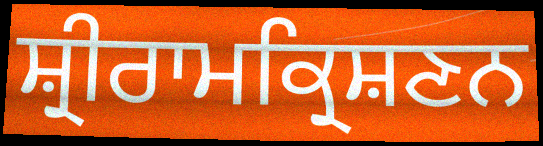
ਸ਼੍ਰੀਰਾਮਕ੍ਰਿਸ਼ਣਨ